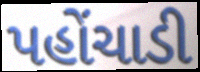
પહોંચાડી